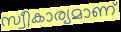
സ്വീകാര്യമാണ്